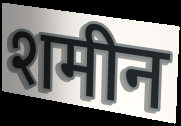
शमीन